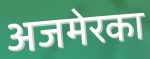
अजमेरका